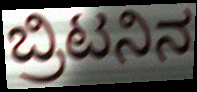
ಬ್ರಿಟನಿನ